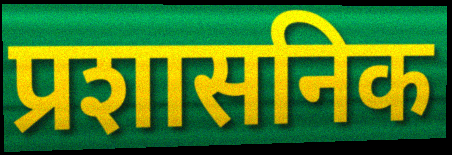
प्रशासनिक